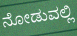
ನೋಡುವಲ್ಲಿ